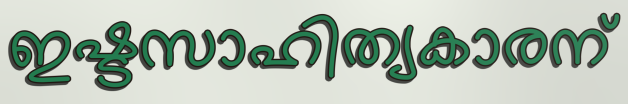
ഇഷ്ടസാഹിത്യകാരന്